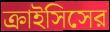
ক্রাইসিসের